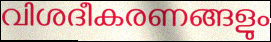
വിശദീകരണങ്ങളും